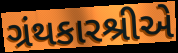
ગ્રંથકારશ્રીએ